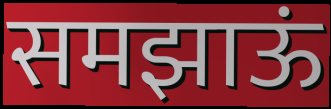
समझाऊं